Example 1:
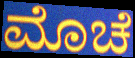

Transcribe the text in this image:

ಮೊಚೆ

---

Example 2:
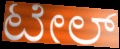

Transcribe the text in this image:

ಟೇಲ್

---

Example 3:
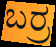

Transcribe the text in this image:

ಬರ್ರ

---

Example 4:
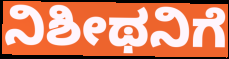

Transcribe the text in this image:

ನಿಶೀಥನಿಗೆ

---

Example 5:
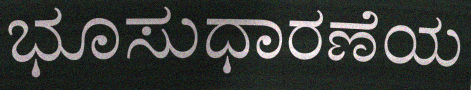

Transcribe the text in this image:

ಭೂಸುಧಾರಣೆಯ